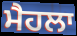
ਮੈਹਲਾ